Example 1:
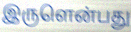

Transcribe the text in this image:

இருளென்பது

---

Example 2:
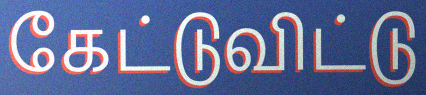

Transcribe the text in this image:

கேட்டுவிட்டு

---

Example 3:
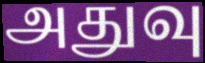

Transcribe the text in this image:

அதுவு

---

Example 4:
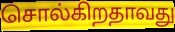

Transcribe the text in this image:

சொல்கிறதாவது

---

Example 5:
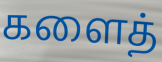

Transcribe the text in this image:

களைத்